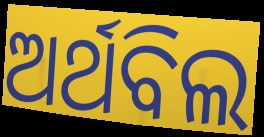
ଅର୍ଥବିଲ